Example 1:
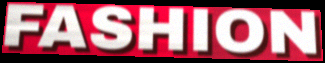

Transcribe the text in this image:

FASHION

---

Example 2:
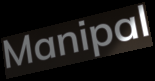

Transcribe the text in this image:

Manipal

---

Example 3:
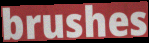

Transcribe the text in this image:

brushes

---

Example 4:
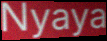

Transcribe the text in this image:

Nyaya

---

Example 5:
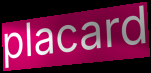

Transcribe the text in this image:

placard